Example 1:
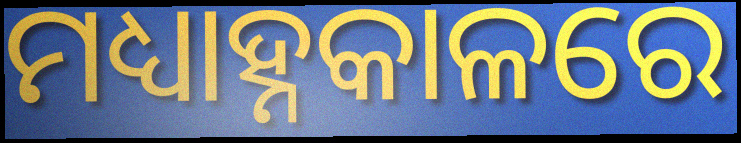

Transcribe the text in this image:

ମଧ୍ୟାହ୍ନକାଳରେ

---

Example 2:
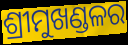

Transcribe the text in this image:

ଶ୍ରୀମୁଖଣ୍ଡଳର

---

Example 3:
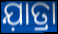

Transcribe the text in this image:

ଯ଼ାତ୍ରା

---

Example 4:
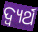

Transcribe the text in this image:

ଦ୍ୱ୍ୟର୍ଥ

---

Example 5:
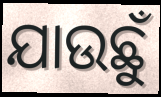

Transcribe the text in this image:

ଯାଉଛୁଁ